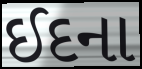
ઈદના